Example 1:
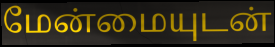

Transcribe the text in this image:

மேன்மையுடன்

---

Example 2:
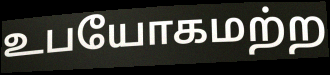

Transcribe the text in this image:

உபயோகமற்ற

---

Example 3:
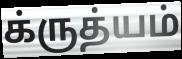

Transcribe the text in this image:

க்ருத்யம்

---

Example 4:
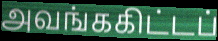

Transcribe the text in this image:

அவங்ககிட்டப்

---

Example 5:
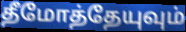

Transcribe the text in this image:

தீமோத்தேயுவும்